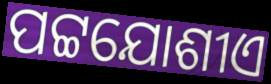
ପଟ୍ଟଯୋଶୀଏ